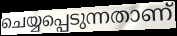
ചെയ്യപ്പെടുന്നതാണ്